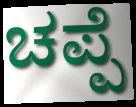
ಚಪ್ಪೆ